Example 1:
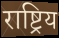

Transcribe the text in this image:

राष्ट्रिय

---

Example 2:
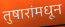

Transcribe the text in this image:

तुषारांमधून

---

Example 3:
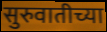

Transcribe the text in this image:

सुरुवातीच्या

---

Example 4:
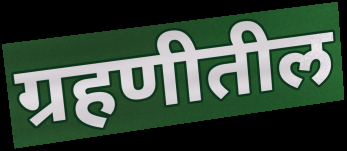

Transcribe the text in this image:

ग्रहणीतील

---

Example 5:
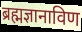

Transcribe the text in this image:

ब्रह्मज्ञानाविण